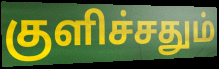
குளிச்சதும்